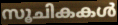
സൂചികകൾ